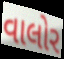
વાલોર